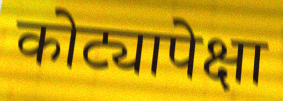
कोट्यापेक्षा